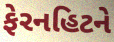
ફેરનહિટને